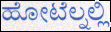
ಹೋಟೆಲ್ನಲ್ಲಿ